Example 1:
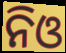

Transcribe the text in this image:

ନିଓ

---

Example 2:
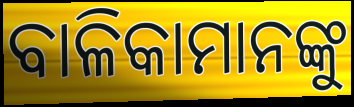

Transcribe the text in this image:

ବାଳିକାମାନଙ୍କୁ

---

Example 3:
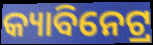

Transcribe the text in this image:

କ୍ୟାବିନେଟ୍ର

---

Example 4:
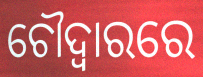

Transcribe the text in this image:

ଚୌଦ୍ୱାରରେ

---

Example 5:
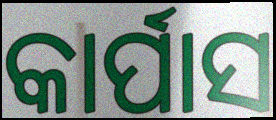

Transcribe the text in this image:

କାର୍ପାସ